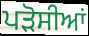
ਪੜੋਸੀਆਂ